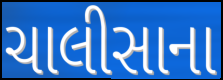
ચાલીસાના